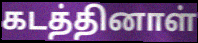
கடத்தினாள்